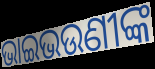
ଭାଇଭଉଣୀଙ୍କ